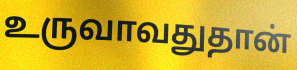
உருவாவதுதான்